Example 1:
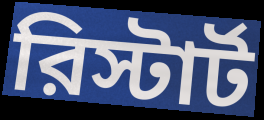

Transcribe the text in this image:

রিস্টার্ট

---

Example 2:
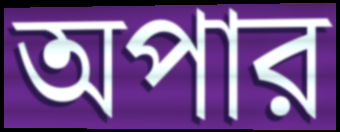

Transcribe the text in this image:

অপার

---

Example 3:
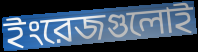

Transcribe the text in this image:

ইংরেজগুলোই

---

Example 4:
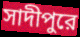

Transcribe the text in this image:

সাদীপুরে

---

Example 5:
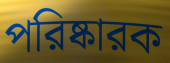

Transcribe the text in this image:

পরিষ্কারক